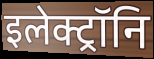
इलेक्ट्रॉनि